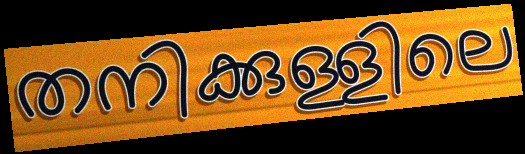
തനിക്കുള്ളിലെ